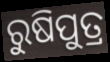
ରୁଷିପୁତ୍ର